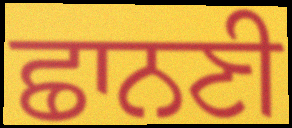
ਛਾਨਣੀ